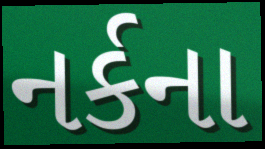
નર્કના